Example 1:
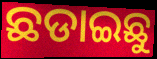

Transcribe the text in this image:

ଛଡାଇଛୁ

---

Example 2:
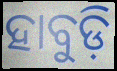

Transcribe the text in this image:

ହାବୁଡ଼ି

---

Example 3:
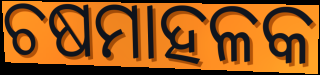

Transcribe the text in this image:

ଚଷମାହଳକ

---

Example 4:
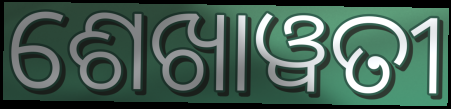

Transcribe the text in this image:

ଶେଖାୱତୀ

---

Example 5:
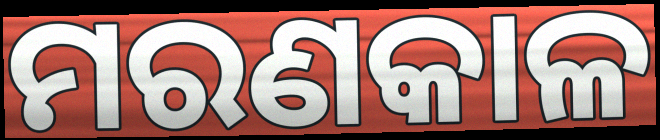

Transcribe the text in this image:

ମରଣକାଳ